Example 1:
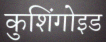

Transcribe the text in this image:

कुशिंगोइड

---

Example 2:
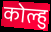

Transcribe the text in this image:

कोल्हु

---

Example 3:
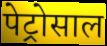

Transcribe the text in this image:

पेट्रोसाल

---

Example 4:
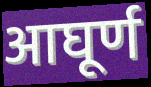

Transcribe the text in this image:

आघूर्ण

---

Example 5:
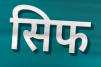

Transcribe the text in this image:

सिफ